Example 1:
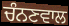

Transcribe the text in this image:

ਚੰਨਣਵਾਲ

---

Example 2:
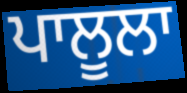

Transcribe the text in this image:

ਪਾਲੂਲਾ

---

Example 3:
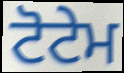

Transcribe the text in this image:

ਟੋਟੇਮ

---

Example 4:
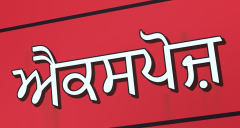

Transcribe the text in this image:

ਐਕਸਪੋਜ਼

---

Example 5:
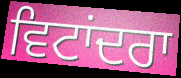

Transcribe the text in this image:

ਵਿਟਾਂਦਰਾ